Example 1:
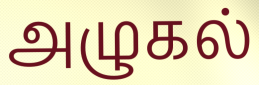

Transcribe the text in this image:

அழுகல்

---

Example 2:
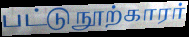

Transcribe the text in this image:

பட்டுநூற்காரர்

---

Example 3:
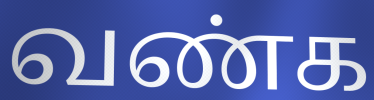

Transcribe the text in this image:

வண்க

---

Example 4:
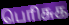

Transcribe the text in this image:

பெரிசுக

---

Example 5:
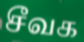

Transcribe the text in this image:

சீவக